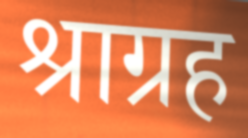
श्राग्रह